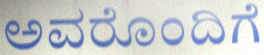
ಅವರೊಂದಿಗೆ